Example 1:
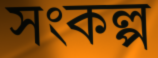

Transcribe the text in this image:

সংকল্প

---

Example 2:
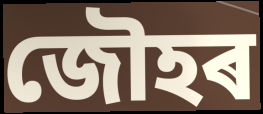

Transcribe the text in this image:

জৌহৰ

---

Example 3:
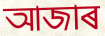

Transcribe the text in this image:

আজাৰ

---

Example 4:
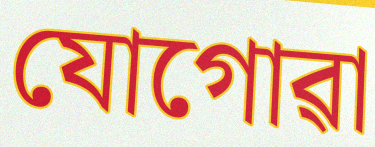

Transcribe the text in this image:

যোগোৱা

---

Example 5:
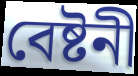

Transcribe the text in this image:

বেষ্টনী